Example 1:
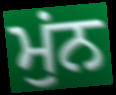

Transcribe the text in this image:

ਮੁਂਨ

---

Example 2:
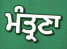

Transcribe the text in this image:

ਮੰਤ੍ਰਣਾ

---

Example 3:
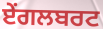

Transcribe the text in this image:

ਏਂਗਲਬਰਟ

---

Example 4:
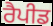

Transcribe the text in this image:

ਰੈਪੀਡ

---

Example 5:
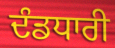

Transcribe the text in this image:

ਦੰਡਧਾਰੀ